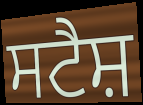
ਸਟੈਸ਼